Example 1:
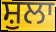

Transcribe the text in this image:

ਸ਼ੁਲਾ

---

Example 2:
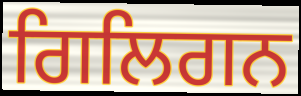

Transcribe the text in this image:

ਗਿਲਿਗਨ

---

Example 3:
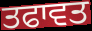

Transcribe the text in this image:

ਤਫਾਵਤ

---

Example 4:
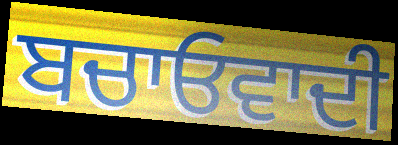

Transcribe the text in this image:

ਬਚਾਓਵਾਦੀ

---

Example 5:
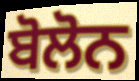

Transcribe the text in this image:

ਬੋਲੋਨ